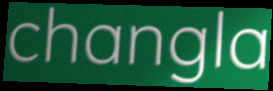
changla